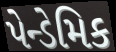
પેન્ડેમિક